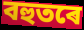
বহুতৰে